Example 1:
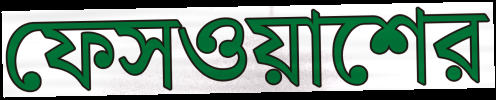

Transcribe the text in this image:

ফেসওয়াশের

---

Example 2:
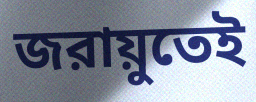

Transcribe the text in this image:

জরায়ুতেই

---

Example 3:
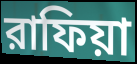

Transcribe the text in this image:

রাফিয়া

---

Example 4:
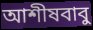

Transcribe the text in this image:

আশীষবাবু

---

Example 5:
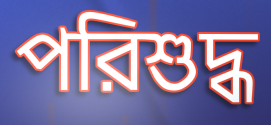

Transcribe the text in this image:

পরিশুদ্ধ